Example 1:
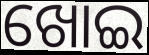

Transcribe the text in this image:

ଖୋଇ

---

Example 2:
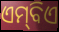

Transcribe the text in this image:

ଏମ୍‌ବିଏ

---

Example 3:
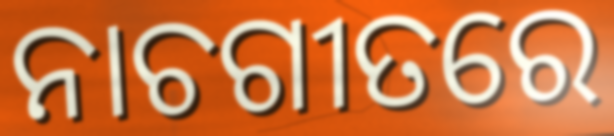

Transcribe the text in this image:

ନାଚଗୀତରେ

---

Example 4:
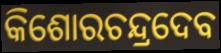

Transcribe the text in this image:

କିଶୋରଚନ୍ଦ୍ରଦେବ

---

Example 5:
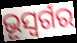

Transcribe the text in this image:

ଭୂସ୍ବର୍ଗର